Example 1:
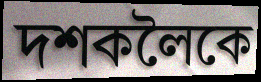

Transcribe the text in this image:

দশকলৈকে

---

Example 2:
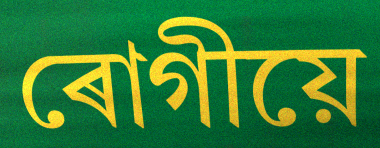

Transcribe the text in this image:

ৰোগীয়ে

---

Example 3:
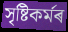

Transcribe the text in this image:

সৃষ্টিকৰ্মৰ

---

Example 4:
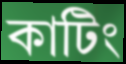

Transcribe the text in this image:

কাটিং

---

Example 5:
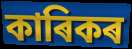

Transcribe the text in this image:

কাৰিকৰ